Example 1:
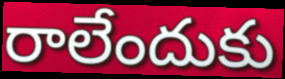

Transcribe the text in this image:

రాలేందుకు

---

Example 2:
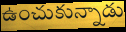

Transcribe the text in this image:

ఉంచుకున్నాడు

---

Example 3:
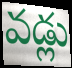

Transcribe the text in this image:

వడ్లు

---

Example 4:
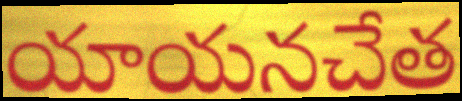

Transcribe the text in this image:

యాయనచేత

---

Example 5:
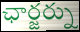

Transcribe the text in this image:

ఛార్జర్ను